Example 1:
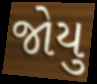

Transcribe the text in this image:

જોયુ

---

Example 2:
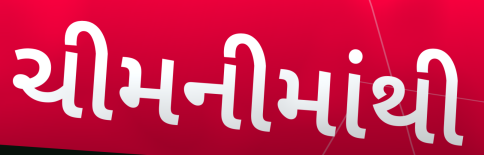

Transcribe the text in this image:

ચીમનીમાંથી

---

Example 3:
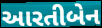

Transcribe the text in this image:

આરતીબેન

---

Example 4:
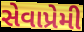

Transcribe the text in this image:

સેવાપ્રેમી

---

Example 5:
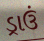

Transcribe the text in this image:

ડ્રાઉં